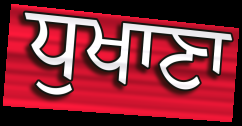
ਧੁਖਾਣਾ